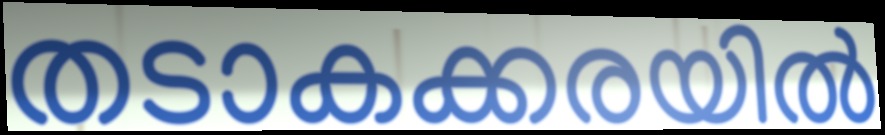
തടാകക്കരയിൽ